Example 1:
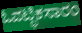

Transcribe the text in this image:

ಓವಟ್ಟಿಕಸಾರಂ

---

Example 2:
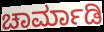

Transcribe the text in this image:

ಚಾರ್ಮಾಡಿ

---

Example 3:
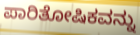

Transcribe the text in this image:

ಪಾರಿತೋಷಿಕವನ್ನು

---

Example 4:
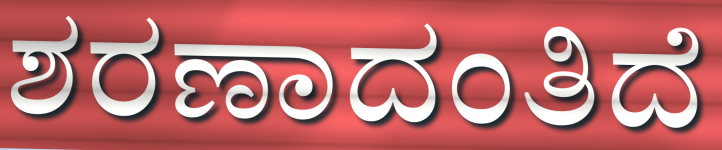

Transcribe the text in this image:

ಶರಣಾದಂತಿದೆ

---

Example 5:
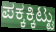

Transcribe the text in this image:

ಪಕ್ಕಕ್ಕಿಟ್ಟು